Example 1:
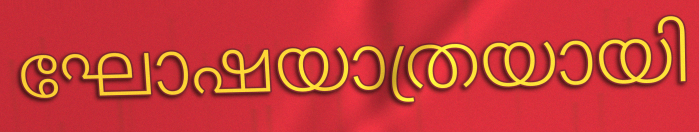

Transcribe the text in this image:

ഘോഷയാത്രയായി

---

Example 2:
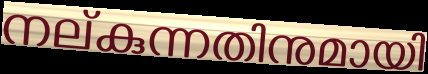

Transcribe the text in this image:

നല്‌കുന്നതിനുമായി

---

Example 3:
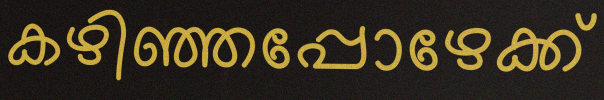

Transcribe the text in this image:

കഴിഞ്ഞപ്പോഴേക്ക്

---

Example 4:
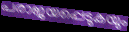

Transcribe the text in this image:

പരാജയപ്പെടുകയും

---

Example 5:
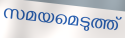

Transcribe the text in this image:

സമയമെടുത്ത്